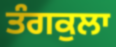
ਤੰਗਕੁਲਾ